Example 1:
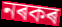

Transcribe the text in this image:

নৰকৰ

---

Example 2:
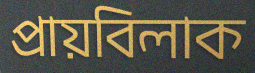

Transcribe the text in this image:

প্ৰায়বিলাক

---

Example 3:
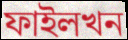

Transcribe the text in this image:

ফাইলখন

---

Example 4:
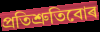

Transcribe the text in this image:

প্ৰতিশ্ৰুতিবোৰ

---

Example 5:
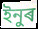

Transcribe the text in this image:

ইনুৰ